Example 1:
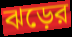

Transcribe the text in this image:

ঝড়ের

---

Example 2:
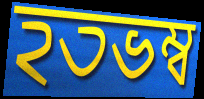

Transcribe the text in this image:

হতভম্ব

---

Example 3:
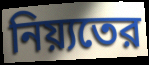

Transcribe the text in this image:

নিয়্যতের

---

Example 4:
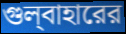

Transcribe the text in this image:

গুল্‌বাহারের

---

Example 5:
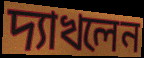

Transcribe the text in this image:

দ্যাখলেন